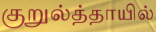
குறுல்த்தாயில்